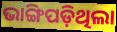
ଭାଙ୍ଗିପଡ଼ିଥିଲା